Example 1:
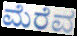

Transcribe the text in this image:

ಮೆರೆವ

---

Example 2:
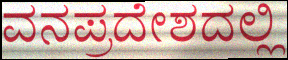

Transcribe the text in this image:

ವನಪ್ರದೇಶದಲ್ಲಿ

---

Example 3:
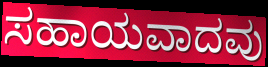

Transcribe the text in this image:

ಸಹಾಯವಾದವು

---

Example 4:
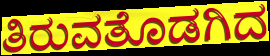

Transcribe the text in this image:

ತಿರುವತೊಡಗಿದ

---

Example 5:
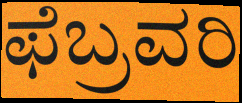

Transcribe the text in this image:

ಫೆಬ್ರವರಿ